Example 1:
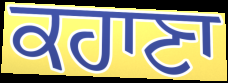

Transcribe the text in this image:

ਕਹਾਣਾ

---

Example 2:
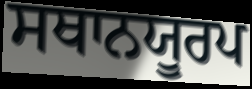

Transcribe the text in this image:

ਸਥਾਨਯੂਰਪ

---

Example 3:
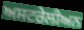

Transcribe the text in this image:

ਅਸਟਰੇਲੀਅਨ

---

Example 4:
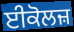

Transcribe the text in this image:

ਈਕੋਲਜ਼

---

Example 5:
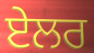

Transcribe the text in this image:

ਏਲਰ